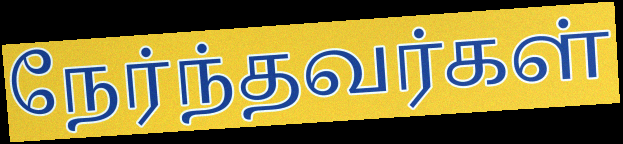
நேர்ந்தவர்கள்